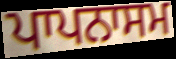
ਪਾਪਨਾਸਮ